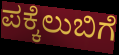
ಪಕ್ಕೆಲುಬಿಗೆ